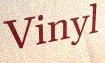
Vinyl